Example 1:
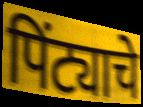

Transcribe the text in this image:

पिंट्याचे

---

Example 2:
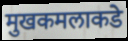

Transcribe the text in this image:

मुखकमलाकडे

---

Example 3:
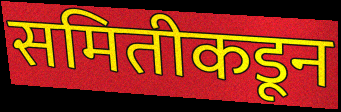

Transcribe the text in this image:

समितीकडून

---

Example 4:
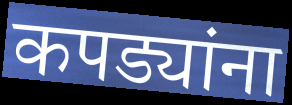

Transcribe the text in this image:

कपड्यांना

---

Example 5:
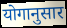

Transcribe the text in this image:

योगानुसार